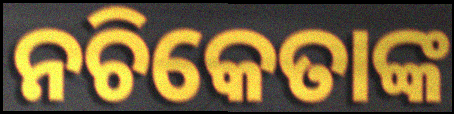
ନଚିକେତାଙ୍କ